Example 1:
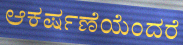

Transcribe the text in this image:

ಆಕರ್ಷಣೆಯೆಂದರೆ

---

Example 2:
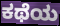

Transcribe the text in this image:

ಕಥೆಯ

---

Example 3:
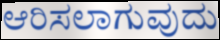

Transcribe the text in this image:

ಆರಿಸಲಾಗುವುದು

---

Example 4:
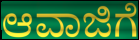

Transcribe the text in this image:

ಆವಾಜಿಗೆ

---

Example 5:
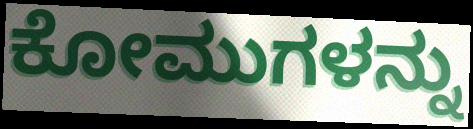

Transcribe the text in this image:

ಕೋಮುಗಳನ್ನು